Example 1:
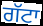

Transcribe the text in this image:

ਗੱਟਾ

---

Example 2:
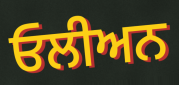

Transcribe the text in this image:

ਓਲੀਅਨ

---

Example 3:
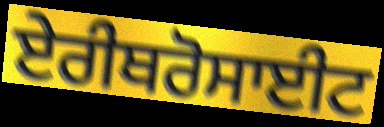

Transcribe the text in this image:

ਏਰੀਥਰੋਸਾਈਟ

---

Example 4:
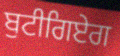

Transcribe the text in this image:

ਬੁਟੀਗਿਏਗ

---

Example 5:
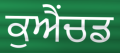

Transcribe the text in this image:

ਕੁਐਂਚਡ